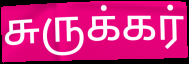
சுருக்கர்